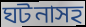
ঘটনাসহ